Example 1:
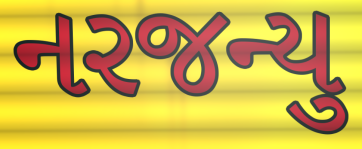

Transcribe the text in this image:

નરજન્યુ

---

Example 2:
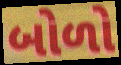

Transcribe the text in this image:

બોળો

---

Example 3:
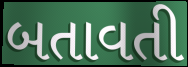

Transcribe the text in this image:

બતાવતી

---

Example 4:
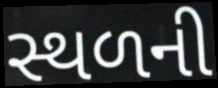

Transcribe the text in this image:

સ્થળની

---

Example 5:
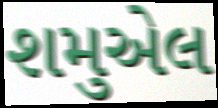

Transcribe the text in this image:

શમુએલ